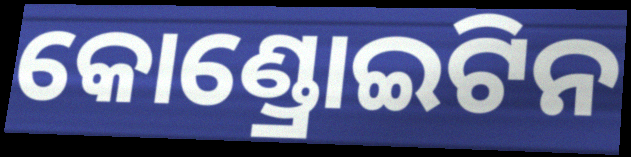
କୋଣ୍ଡ୍ରୋଇଟିନ